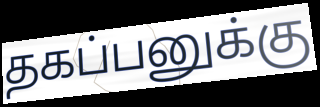
தகப்பனுக்கு